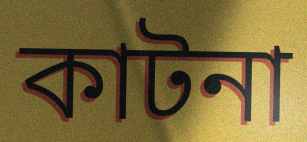
কাটনা